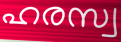
ഹരസ്വ